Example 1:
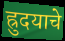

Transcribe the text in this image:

ह्रुदयाचे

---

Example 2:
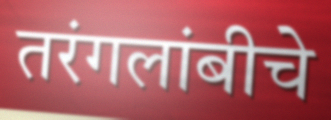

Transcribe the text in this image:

तरंगलांबीचे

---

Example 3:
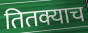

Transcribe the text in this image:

तितक्याच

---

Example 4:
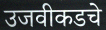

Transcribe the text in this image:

उजवीकडचे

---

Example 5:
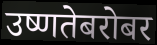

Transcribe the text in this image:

उष्णतेबरोबर